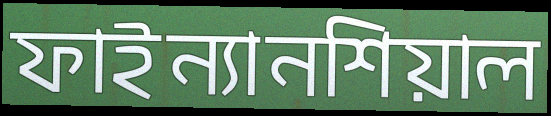
ফাইন্যানশিয়াল